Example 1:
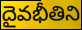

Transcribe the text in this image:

దైవభీతిని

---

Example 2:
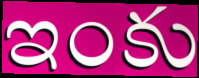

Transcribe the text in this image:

ఇంకు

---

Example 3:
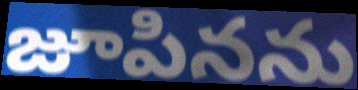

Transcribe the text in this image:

జూపినను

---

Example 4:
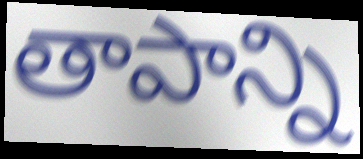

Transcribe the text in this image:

తాపాన్ని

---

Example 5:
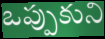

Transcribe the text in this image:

ఒప్పుకుని